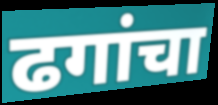
ढगांचा